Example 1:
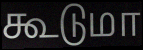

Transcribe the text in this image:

கூடுமா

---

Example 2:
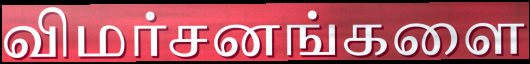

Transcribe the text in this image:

விமர்சனங்களை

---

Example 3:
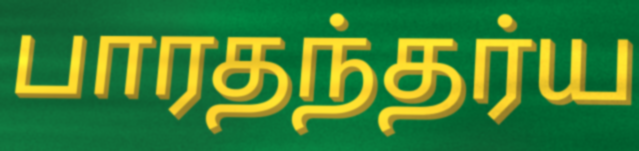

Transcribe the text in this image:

பாரதந்தர்ய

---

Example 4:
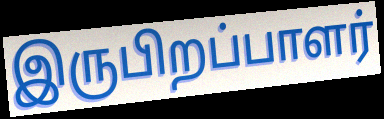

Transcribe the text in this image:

இருபிறப்பாளர்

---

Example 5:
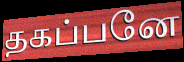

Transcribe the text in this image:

தகப்பனே